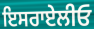
ਇਸਰਾਏਲੀਓ